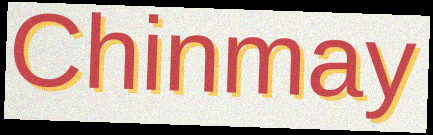
Chinmay